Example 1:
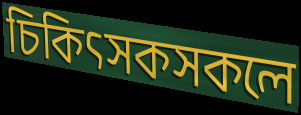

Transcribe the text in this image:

চিকিৎসকসকলে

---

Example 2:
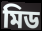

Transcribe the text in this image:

মিড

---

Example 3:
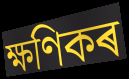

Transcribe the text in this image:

ক্ষণিকৰ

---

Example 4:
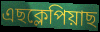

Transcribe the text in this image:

এছক্লেপিয়াছ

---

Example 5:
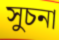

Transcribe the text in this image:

সুচনা